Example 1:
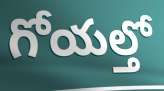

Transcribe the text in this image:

గోయల్తో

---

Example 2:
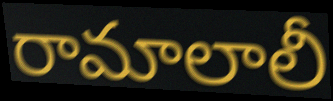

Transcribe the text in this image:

రామాలాలీ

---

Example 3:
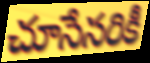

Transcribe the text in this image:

చూసేసరికీ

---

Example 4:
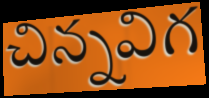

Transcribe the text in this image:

చిన్నవిగ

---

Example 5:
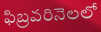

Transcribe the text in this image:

ఫిబ్రవరినెలలో